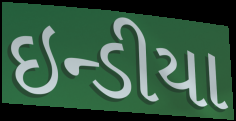
ઇન્ડીયા